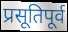
प्रसूतिपूर्व